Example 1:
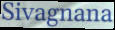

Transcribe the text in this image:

Sivagnana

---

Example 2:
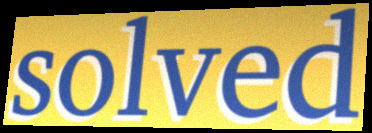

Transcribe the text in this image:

solved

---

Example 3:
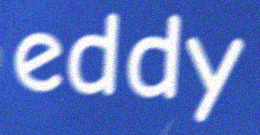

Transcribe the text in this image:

eddy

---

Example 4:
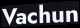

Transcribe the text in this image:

Vachun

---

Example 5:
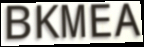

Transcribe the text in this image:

BKMEA